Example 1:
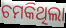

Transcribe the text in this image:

ଚମକିଥିଲା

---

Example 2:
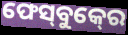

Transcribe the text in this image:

ଫେସ୍‍ବୁକ୍‍ରେ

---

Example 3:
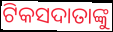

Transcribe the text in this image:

ଟିକସଦାତାଙ୍କୁ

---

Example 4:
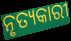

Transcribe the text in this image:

ନୃତ୍ୟକାରୀ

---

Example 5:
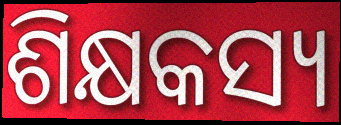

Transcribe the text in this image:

ଶିକ୍ଷକସ୍ୟ